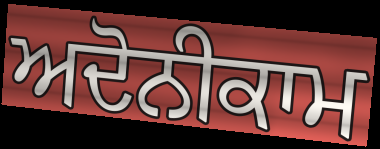
ਅਦੋਨੀਕਾਮ